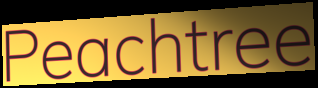
Peachtree